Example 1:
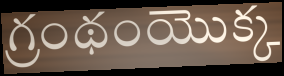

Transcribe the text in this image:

గ్రంథంయొక్క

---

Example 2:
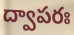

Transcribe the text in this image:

ద్వాపరః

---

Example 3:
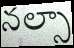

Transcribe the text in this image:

నల్సా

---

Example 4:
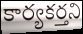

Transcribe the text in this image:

కార్యకర్తని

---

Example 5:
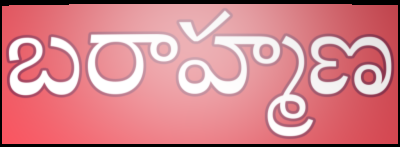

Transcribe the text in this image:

బరాహ్మణ